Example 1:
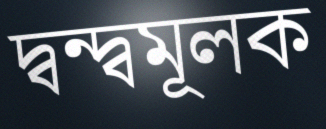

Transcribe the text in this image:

দ্বন্দ্বমূলক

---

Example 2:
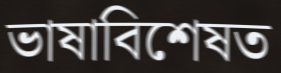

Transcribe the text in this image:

ভাষাবিশেষত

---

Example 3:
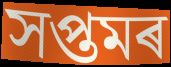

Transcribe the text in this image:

সপ্তমৰ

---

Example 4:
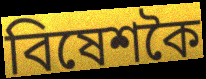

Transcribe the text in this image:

বিষেশকৈ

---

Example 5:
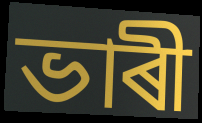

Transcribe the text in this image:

ভাৰী